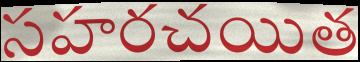
సహరచయిత